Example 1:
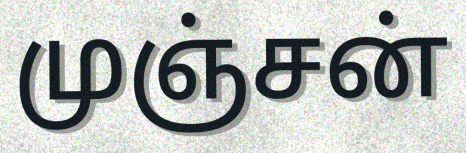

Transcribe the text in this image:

முஞ்சன்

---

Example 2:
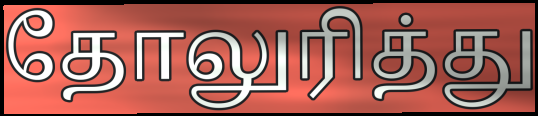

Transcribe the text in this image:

தோலுரித்து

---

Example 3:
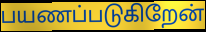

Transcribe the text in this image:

பயணப்படுகிறேன்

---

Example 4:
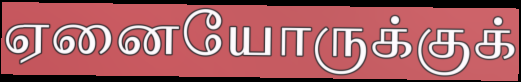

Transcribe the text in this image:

ஏனையோருக்குக்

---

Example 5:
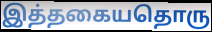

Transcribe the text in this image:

இத்தகையதொரு